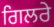
ਗਿਲਰੇ